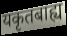
यकृतबाह्य